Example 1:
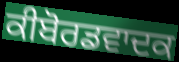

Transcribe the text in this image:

ਕੀਬੋਰਡਵਾਦਕ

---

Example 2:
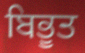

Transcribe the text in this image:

ਬਿਭੂਤ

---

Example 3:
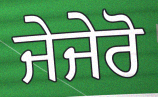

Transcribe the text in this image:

ਜੇਜੇਰੋ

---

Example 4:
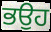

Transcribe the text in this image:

ਭਉਹ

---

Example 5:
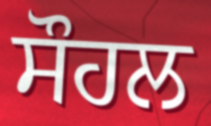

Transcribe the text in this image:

ਸੌਹਲ